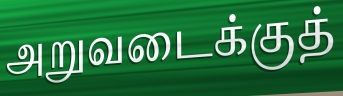
அறுவடைக்குத்